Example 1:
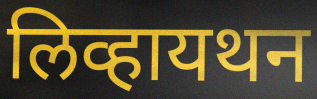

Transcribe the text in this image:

लिव्हायथन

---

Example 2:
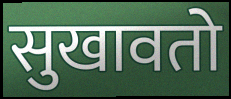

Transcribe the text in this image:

सुखावतो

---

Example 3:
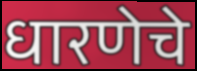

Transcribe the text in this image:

धारणेचे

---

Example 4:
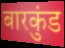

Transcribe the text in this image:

बारकुंड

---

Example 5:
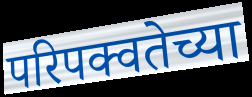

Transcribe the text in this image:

परिपक्वतेच्या